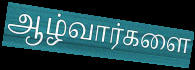
ஆழ்வார்களை